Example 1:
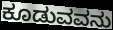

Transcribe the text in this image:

ಕೂಡುವವನು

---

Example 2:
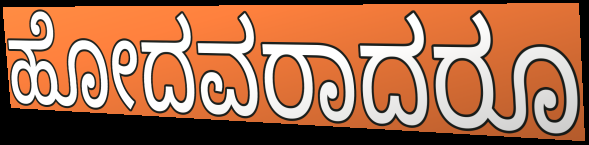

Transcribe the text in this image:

ಹೋದವರಾದರೂ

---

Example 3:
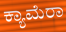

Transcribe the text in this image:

ಕ್ಯಾಮೆರಾ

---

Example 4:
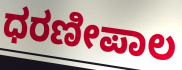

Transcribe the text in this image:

ಧರಣೀಪಾಲ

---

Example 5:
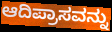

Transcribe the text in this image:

ಆದಿಪ್ರಾಸವನ್ನು